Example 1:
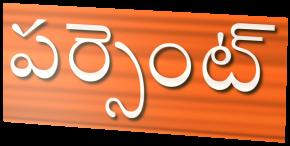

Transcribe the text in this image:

పర్సెంట్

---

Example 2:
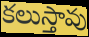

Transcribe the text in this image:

కలుస్తావు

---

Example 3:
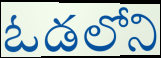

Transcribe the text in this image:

ఓడలోని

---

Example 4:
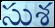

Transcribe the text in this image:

సుశ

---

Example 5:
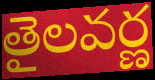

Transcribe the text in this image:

తైలవర్ణ